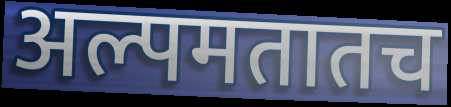
अल्पमतातच